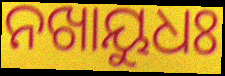
ନଖାୟୁଧଃ